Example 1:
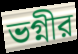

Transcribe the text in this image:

ভগ্নীর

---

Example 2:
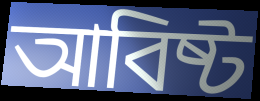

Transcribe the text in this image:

আবিষ্ট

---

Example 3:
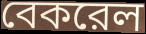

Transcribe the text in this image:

বেকরেল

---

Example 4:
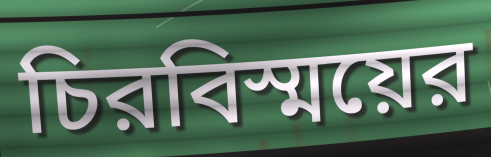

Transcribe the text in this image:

চিরবিস্ময়ের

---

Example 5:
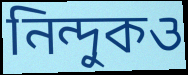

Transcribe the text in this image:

নিন্দুকও